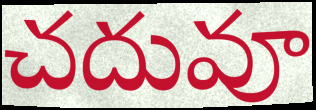
చదువూ